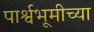
पार्श्वभूमीच्या